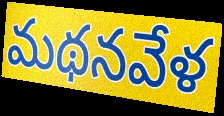
మథనవేళ